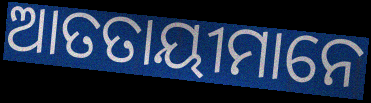
ଆତତାୟୀମାନେ